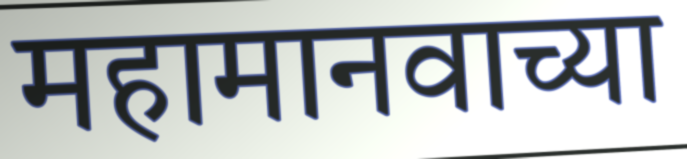
महामानवाच्या